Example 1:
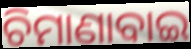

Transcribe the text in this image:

ଚିମାଣାବାଇ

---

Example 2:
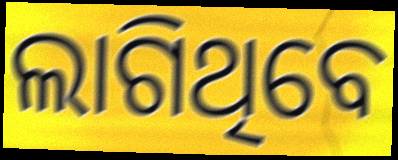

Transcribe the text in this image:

ଲାଗିଥିବେ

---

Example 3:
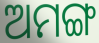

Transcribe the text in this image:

ଅମଙ୍ଗ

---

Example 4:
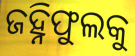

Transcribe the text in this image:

ଜହ୍ନିଫୁଲକୁ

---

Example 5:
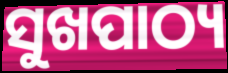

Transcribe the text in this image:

ସୁଖପାଠ୍ୟ